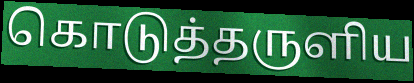
கொடுத்தருளிய